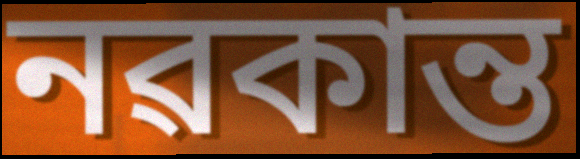
নৱকান্ত